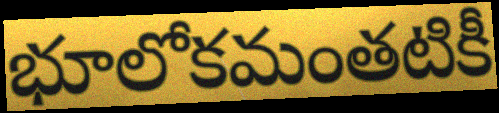
భూలోకమంతటికీ